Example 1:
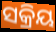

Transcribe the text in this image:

ସକ୍ରିୟ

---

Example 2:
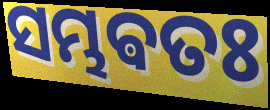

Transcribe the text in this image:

ସମ୍ଭଵତଃ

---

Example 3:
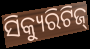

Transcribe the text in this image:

ସିକ୍ୟୁରିଟିଜ୍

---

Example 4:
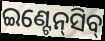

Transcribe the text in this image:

ଇଣ୍ଟେନ୍‍ସିବ୍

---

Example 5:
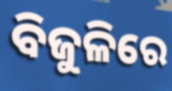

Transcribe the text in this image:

ବିଜୁଳିରେ